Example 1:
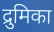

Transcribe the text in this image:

द्रुमिका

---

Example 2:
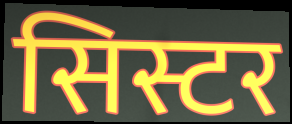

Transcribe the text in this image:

सिस्टर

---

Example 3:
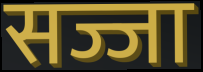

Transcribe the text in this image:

सज्जा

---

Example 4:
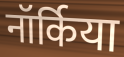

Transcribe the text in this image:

नॉर्किया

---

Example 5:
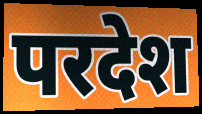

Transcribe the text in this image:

परदेश